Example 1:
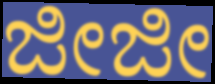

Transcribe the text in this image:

ಜೀಜೀ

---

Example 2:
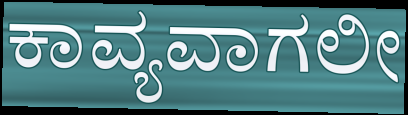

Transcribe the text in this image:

ಕಾವ್ಯವಾಗಲೀ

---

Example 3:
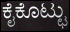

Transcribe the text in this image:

ಕೈಕೊಟ್ಟು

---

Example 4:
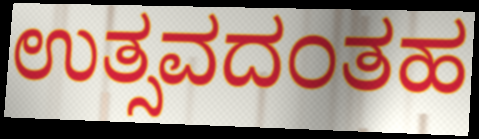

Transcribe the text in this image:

ಉತ್ಸವದಂತಹ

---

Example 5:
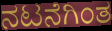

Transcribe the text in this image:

ನಟನೆಗಿಂತ